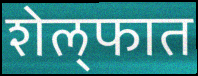
शेल्फात